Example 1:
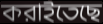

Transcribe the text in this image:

করাইতেছে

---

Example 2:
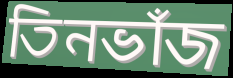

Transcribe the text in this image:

তিনভাঁজ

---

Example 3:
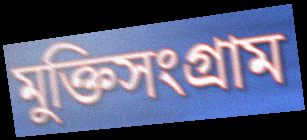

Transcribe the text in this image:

মুক্তিসংগ্রাম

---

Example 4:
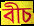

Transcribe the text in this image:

বীচ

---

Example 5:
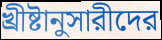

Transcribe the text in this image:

খ্রীষ্টানুসারীদের